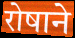
रोषाने